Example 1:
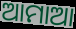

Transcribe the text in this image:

ଆମାଆ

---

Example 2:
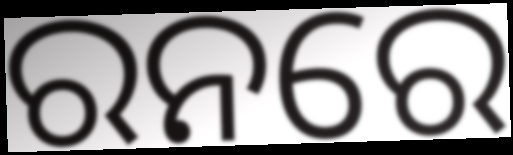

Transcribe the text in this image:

ରନରେ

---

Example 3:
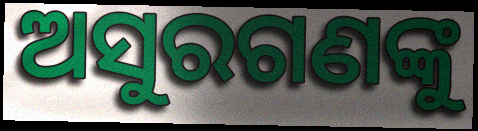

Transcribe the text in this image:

ଅସୁରଗଣଙ୍କୁ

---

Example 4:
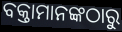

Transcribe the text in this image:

ବକ୍ତାମାନଙ୍କଠାରୁ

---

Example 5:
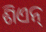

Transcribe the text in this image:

ଶିଏନ୍